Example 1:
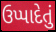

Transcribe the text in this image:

ઉપ્પાદેતું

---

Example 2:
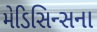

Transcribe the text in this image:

મેડિસિન્સના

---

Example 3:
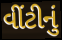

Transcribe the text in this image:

વીંટીનું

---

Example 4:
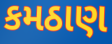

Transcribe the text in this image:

કમઠાણ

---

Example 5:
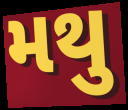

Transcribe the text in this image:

મથુ